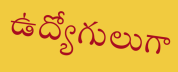
ఉద్యోగులుగా